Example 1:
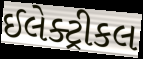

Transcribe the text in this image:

ઈલેક્ટ્રીકલ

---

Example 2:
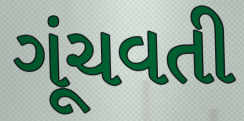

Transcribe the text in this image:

ગૂંચવતી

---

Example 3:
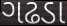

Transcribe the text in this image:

ગઢડા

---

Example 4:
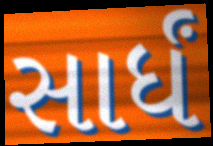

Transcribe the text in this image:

સાર્ધં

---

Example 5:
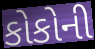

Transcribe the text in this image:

કોકોની